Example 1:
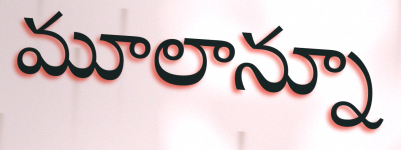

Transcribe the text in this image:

మూలాన్నూ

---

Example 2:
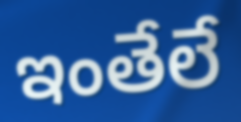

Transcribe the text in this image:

ఇంతేలే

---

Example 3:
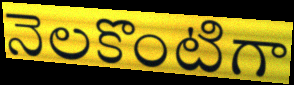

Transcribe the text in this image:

నెలకొంటిగా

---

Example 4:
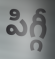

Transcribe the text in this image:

పిగ్గీ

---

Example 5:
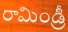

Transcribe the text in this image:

రామిండ్రీ